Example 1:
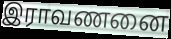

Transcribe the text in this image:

இராவணனை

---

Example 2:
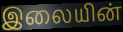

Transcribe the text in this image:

இலையின்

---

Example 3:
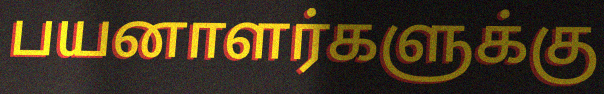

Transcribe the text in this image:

பயனாளர்களுக்கு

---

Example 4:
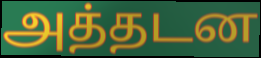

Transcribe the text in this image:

அத்தடன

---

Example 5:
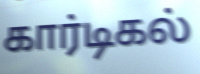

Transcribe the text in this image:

கார்டிகல்